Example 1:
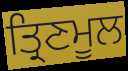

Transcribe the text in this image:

ਤ੍ਰਿਣਮੂਲ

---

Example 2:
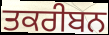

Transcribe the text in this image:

ਤਕਰੀਬਨ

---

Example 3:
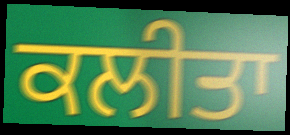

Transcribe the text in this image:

ਕਲੀਤਾ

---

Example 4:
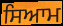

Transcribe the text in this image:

ਸਿਆਮ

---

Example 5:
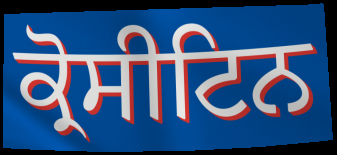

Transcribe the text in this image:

ਕ੍ਰੋਸੀਟਿਨ